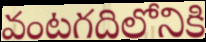
వంటగదిలోనికి